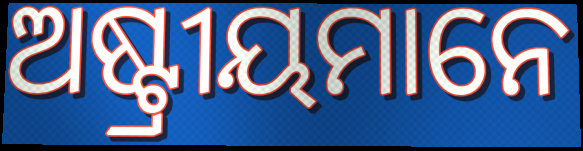
ଅଷ୍ଟ୍ରୀୟମାନେ